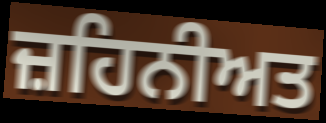
ਜ਼ਹਿਨੀਅਤ